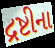
દ્રષ્ટીના